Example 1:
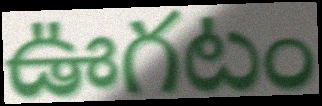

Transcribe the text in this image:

ఊగటం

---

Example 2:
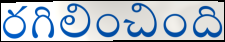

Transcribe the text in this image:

రగిలించింది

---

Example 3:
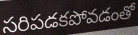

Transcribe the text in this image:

సరిపడకపోవడంతో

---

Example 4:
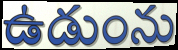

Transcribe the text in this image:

ఉడుంను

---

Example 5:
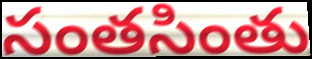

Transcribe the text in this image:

సంతసింతు